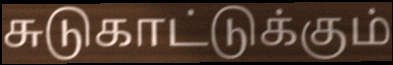
சுடுகாட்டுக்கும்